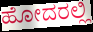
ಹೋದರಲ್ಲಿ